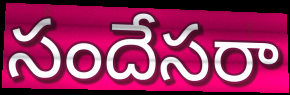
సందేసరా